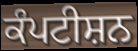
ਕੰਪਟੀਸ਼ਨ